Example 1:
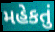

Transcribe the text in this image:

મહેકતું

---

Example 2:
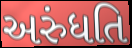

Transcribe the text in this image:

અરુંધતિ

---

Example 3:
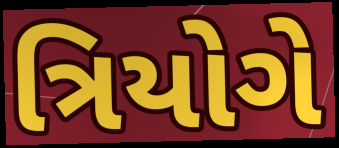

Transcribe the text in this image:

ત્રિયોગે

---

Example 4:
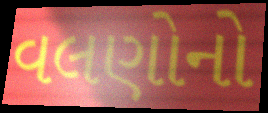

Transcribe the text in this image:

વલણોનો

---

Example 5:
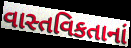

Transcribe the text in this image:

વાસ્તવિકતાનાં